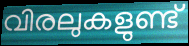
വിരലുകളുണ്ട്